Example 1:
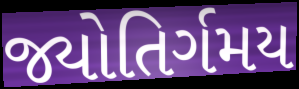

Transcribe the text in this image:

જ્યોતિર્ગમય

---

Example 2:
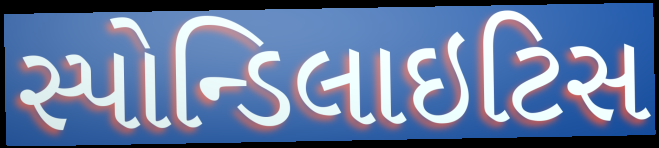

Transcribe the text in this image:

સ્પોન્ડિલાઇટિસ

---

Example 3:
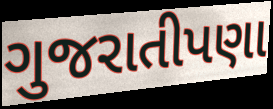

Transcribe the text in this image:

ગુજરાતીપણા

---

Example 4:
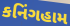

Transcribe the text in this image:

કનિંગહામ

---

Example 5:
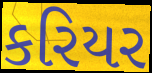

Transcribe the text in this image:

કરિયર